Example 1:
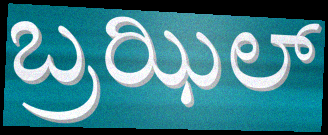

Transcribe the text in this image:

ಬ್ರಝಿಲ್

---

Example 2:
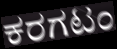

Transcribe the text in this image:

ಕರಗಟಂ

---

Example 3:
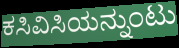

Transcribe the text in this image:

ಕಸಿವಿಸಿಯನ್ನುಂಟು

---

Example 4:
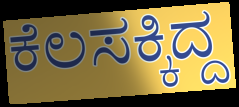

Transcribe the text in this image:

ಕೆಲಸಕ್ಕಿದ್ದ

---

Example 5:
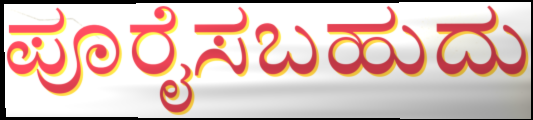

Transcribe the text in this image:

ಪೂರೈಸಬಹುದು